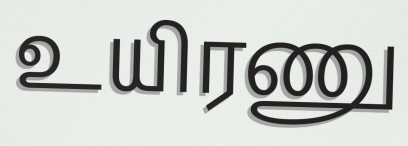
உயிரணு